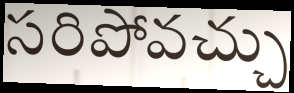
సరిపోవచ్చు